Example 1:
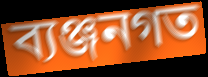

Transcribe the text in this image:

ব্যঞ্জনগত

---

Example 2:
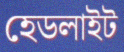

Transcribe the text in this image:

হেডলাইট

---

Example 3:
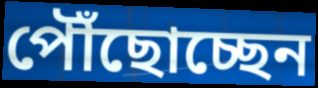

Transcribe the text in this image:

পৌঁছোচ্ছেন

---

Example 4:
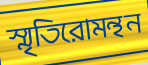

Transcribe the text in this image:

স্মৃতিরোমন্থন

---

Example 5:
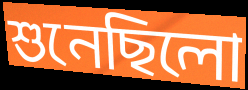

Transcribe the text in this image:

শুনেছিলো